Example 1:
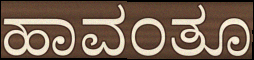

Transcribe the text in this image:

ಹಾವಂತೂ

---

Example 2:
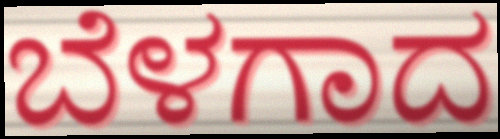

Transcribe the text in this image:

ಬೆಳಗಾದ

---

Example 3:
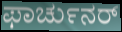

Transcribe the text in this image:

ಫಾರ್ಚುನರ್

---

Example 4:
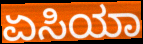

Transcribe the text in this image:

ಏಸಿಯಾ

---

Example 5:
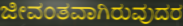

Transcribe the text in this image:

ಜೀವಂತವಾಗಿರುವುದರ